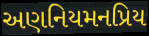
અણનિયમનપ્રિય